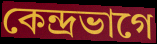
কেন্দ্রভাগে